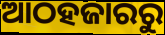
ଆଠହଜାରରୁ